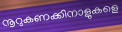
നൂറുകണക്കിനാളുകളെ